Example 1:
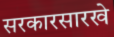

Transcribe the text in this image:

सरकारसारखे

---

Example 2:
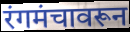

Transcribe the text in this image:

रंगमंचावरून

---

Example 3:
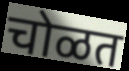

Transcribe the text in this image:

चोळत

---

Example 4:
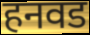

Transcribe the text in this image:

हनवड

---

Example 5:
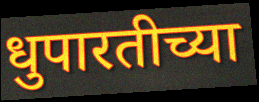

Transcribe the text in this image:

धुपारतीच्या